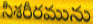
నీశరీరమును